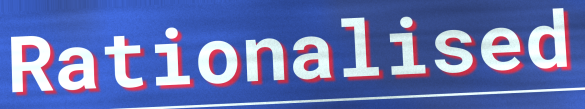
Rationalised